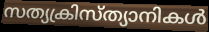
സത്യക്രിസ്ത്യാനികൾ